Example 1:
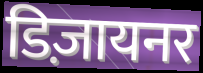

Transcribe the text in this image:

डिज़ायनर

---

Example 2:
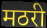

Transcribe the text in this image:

मठरी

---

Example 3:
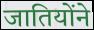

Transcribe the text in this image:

जातियोंने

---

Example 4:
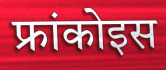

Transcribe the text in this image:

फ्रांकोइस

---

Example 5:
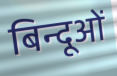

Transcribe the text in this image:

बिन्दूओं